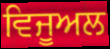
ਵਿਜੂਅਲ